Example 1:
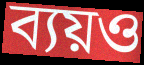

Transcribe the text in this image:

ব্যয়ও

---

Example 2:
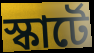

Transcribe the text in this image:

স্কার্টে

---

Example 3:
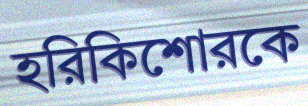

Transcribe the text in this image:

হরিকিশোরকে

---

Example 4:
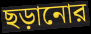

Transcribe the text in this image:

ছড়ানোর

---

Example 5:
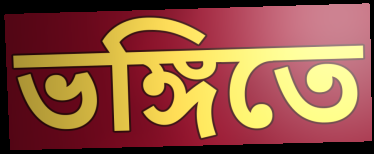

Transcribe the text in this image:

ভঙ্গিতে